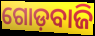
ଗୋଡ଼ବାଜି